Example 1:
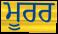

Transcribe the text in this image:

ਮੂਰਰ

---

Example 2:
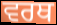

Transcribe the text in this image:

ਵਰਥ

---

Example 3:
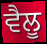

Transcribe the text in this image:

ਵੈਲੂ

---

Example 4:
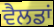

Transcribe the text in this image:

ਵੈਲਡਾਂ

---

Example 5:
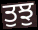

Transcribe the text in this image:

ਤੁਝੁ